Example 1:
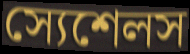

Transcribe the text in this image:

স্যেশেলস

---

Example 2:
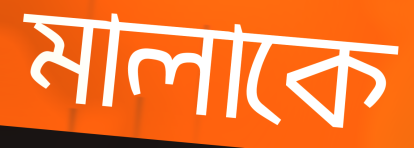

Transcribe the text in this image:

মালাকে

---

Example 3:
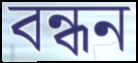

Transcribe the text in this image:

বন্ধন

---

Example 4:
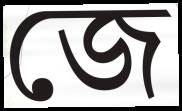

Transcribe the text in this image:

জে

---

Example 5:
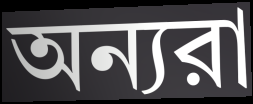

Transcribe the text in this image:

অন্যরা